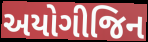
અયોગીજિન